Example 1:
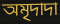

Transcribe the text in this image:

অমৃদাদা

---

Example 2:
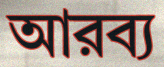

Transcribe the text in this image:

আরব্য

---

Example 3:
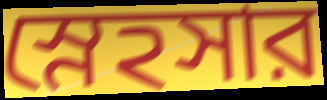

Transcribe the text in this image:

স্নেহসার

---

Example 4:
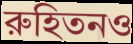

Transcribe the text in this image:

রুহিতনও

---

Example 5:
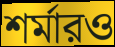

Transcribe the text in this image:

শর্মারও